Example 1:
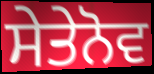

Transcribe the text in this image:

ਸੇਤੇਨੋਵ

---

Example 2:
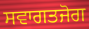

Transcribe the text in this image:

ਸਵਾਗਤਜੋਗ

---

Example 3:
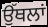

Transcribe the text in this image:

ਉੱਥਲਾਂ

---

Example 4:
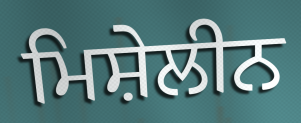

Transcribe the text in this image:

ਮਿਸ਼ੇਲੀਨ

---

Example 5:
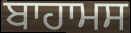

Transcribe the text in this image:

ਬਾਹਾਮਸ